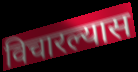
विचारल्यास